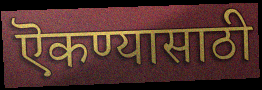
ऎकण्यासाठी